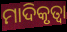
ମାଦିକୃତ୍ୱା